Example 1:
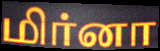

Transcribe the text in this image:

மிர்னா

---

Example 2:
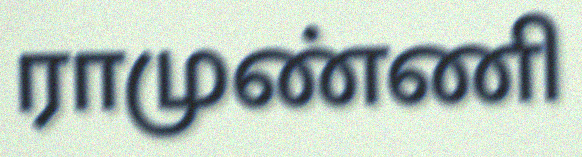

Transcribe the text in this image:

ராமுண்ணி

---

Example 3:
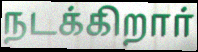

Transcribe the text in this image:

நடக்கிறார்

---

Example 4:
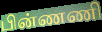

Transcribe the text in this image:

பின்ணணி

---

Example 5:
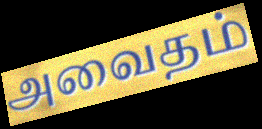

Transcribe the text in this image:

அவைதம்